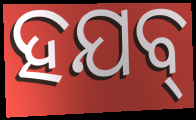
ହଯବ୍